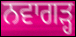
ਨਵਾਗੜ੍ਹ